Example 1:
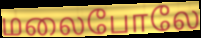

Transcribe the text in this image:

மலைபோலே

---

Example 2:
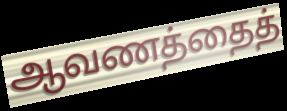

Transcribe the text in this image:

ஆவணத்தைத்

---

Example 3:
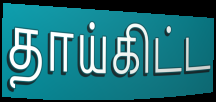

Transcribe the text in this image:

தாய்கிட்ட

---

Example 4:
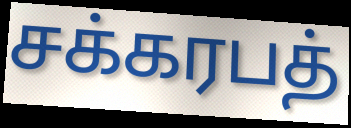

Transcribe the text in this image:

சக்கரபத்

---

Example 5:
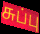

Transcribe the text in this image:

சுப்பு